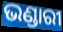
ଭଣ୍ଡାରୀ